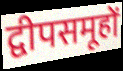
द्वीपसमूहों